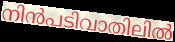
നിൻപടിവാതിലിൽ